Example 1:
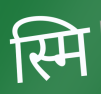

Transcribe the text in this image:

स्मि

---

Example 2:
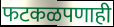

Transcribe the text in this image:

फटकळपणाही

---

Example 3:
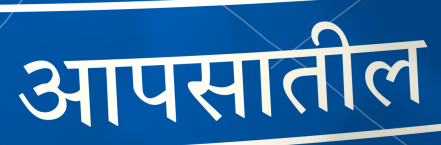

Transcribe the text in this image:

आपसातील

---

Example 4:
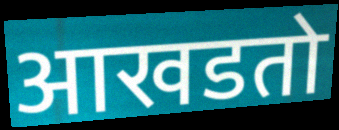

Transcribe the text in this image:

आखडतो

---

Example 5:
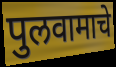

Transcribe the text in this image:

पुलवामाचे